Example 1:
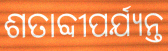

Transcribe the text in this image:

ଶତାବ୍ଦୀପର୍ଯ୍ୟନ୍ତ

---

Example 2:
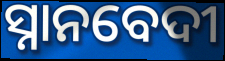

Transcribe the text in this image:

ସ୍ନାନବେଦୀ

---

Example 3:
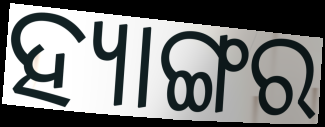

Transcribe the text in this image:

ହ୍ୟାଙ୍ଗର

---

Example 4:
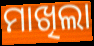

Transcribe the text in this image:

ମାଖିଲା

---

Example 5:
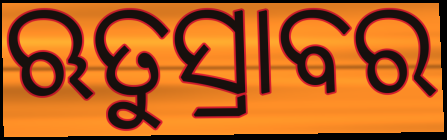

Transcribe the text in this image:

ଋତୁସ୍ରାବର